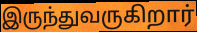
இருந்துவருகிறார்